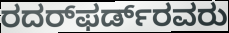
ರದರ್‌ಫರ್ಡ್‌ರವರು